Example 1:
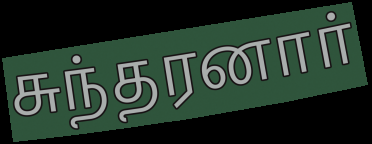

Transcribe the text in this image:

சுந்தரனார்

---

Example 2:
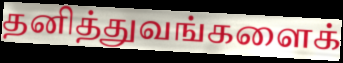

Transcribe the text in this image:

தனித்துவங்களைக்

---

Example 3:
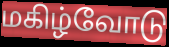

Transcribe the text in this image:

மகிழ்வோடு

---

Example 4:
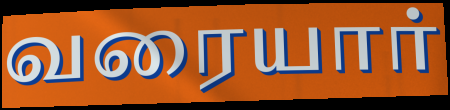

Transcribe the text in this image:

வரையார்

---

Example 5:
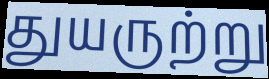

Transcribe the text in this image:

துயருற்று